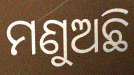
ମଣୁଅଛି